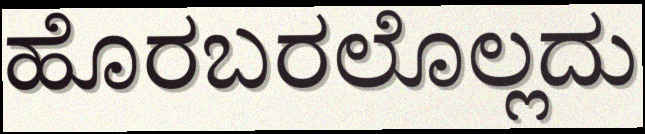
ಹೊರಬರಲೊಲ್ಲದು